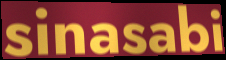
sinasabi